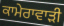
ਕਾਮੇਰਾਵਾੜੀ